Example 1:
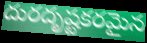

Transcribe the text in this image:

దురదృష్టకరమైన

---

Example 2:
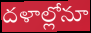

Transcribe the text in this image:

దళాల్లోనూ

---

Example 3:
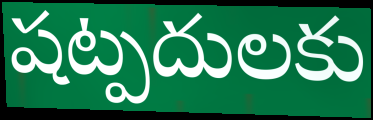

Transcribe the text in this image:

షట్పదులకు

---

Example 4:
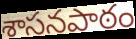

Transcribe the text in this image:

శాసనపాఠం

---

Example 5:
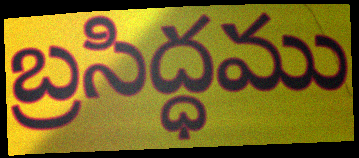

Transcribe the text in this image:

బ్రసిద్ధము